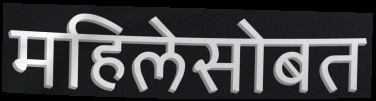
महिलेसोबत